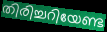
തിരിച്ചറിയേണ്ട